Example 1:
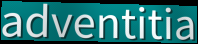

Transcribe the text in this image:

adventitia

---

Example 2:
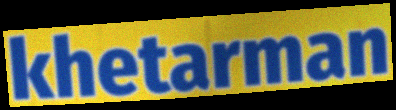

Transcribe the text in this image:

khetarman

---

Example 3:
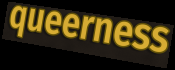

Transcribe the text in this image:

queerness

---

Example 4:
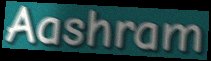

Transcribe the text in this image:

Aashram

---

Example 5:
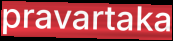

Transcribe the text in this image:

pravartaka